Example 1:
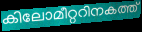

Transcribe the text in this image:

കിലോമീറ്ററിനകത്ത്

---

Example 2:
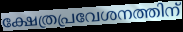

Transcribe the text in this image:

ക്ഷേത്രപ്രവേശനത്തിന്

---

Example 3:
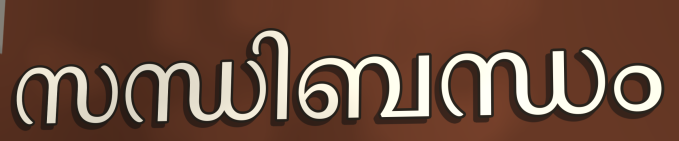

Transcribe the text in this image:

സന്ധിബന്ധം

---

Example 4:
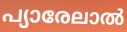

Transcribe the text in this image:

പ്യാരേലാൽ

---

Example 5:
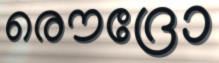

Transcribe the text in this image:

രൌദ്രോ